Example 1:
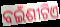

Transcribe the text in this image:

ବଇଁଶୀଟିଏ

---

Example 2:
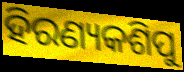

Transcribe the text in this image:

ହିରଣ୍ୟକଶିପୁ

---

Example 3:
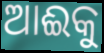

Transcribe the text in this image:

ଆଈକୁ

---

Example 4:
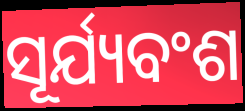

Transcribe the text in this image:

ସୂର୍ଯ୍ୟବଂଶ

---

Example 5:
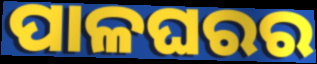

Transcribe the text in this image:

ପାଳଘରର